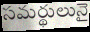
సమర్థులునై